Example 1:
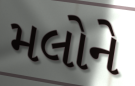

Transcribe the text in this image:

મલોને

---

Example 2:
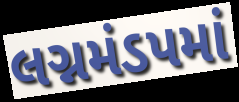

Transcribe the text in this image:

લગ્નમંડપમાં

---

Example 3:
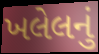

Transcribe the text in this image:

ખલેલનું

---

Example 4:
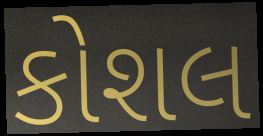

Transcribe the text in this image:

કોશલ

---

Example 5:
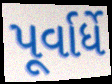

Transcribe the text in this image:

પૂર્વાર્ધે